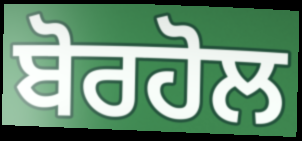
ਬੋਰਹੋਲ